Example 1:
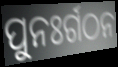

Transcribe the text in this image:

ପୁନଃର୍ଗଠନ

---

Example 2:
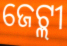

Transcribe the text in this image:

ଜେଟ୍ଲୀ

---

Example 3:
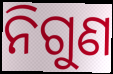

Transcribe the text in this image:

ନିଗୁଣ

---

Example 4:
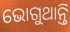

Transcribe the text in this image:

ଭୋଗୁଥାନ୍ତି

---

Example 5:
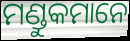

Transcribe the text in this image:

ମଣ୍ଡୁକମାନେ